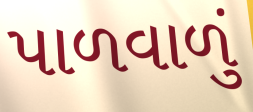
પાળવાળું